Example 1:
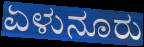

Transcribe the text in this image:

ಏಳುನೂರು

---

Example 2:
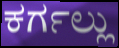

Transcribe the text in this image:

ಕರ್ಗಲ್ಲು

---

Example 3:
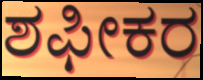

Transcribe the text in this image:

ಶಫೀಕರ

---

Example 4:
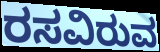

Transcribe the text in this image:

ರಸವಿರುವ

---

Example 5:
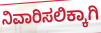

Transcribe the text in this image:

ನಿವಾರಿಸಲಿಕ್ಕಾಗಿ